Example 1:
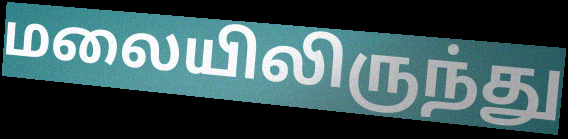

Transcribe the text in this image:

மலையிலிருந்து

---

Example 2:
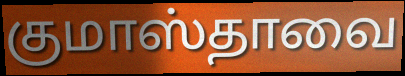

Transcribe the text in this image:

குமாஸ்தாவை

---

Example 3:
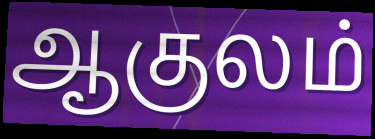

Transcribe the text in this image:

ஆகுலம்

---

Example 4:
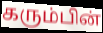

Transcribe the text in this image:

கரும்பின்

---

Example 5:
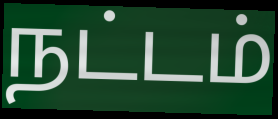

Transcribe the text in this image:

நட்டம்